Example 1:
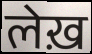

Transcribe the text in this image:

लेख़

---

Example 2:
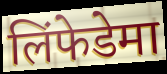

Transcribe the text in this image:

लिंफेडेमा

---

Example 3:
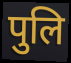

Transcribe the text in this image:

पुलि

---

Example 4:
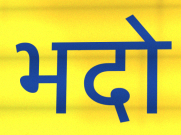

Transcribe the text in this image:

भदो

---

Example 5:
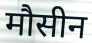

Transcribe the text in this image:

मौसीन